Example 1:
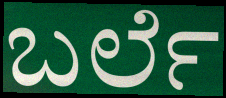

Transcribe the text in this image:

ಬರ್ಲೆ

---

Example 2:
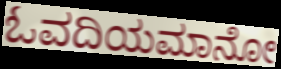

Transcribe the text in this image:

ಓವದಿಯಮಾನೋ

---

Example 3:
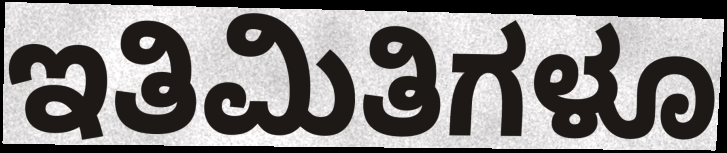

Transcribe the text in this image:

ಇತಿಮಿತಿಗಳೂ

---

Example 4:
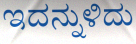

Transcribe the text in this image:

ಇದನ್ನುಳಿದು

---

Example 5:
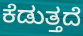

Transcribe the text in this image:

ಕೆಡುತ್ತದೆ